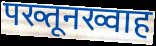
पख्तूनख्वाह